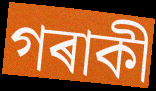
গৰাকী